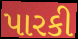
પારકી